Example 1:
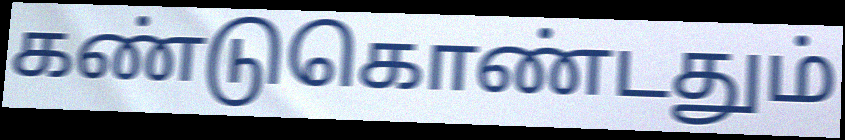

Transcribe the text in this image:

கண்டுகொண்டதும்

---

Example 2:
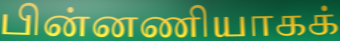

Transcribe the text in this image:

பின்னணியாகக்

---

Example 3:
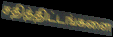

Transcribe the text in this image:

சதித்திட்டங்களை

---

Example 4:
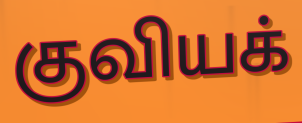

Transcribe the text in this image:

குவியக்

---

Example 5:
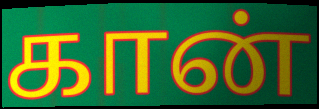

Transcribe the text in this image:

கான்